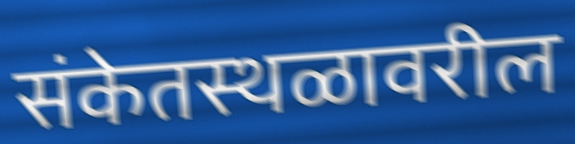
संकेतस्थळावरील